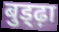
बुड्ढ़ा